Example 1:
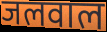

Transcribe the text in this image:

जलवाल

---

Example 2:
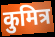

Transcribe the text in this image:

कुमित्र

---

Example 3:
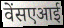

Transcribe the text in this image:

वेंसएआई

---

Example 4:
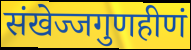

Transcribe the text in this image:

संखेज्जगुणहीणं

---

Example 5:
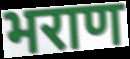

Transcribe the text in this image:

भराण